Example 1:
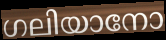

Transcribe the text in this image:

ഗലിയാനോ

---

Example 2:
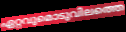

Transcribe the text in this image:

ഏറ്റവുമൊടുവിലത്തെ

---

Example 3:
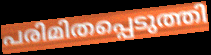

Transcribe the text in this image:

പരിമിതപ്പെടുത്തി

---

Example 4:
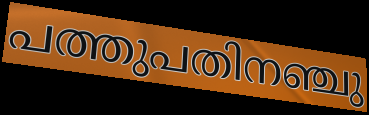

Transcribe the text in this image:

പത്തുപതിനഞ്ചു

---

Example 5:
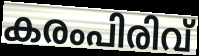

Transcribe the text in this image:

കരംപിരിവ്